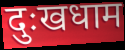
दुःखधाम